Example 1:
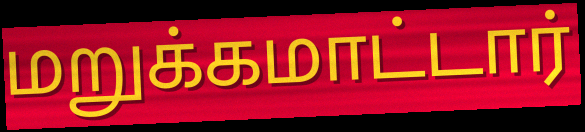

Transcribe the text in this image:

மறுக்கமாட்டார்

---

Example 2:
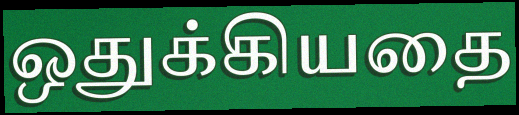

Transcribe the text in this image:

ஒதுக்கியதை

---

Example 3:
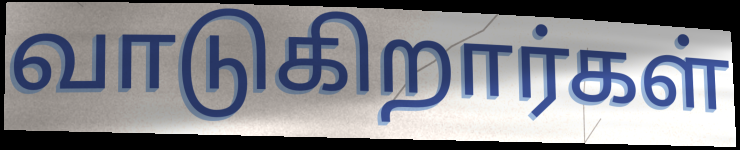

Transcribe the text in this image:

வாடுகிறார்கள்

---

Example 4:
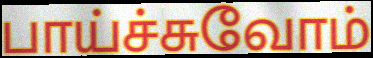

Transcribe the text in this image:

பாய்ச்சுவோம்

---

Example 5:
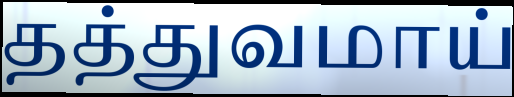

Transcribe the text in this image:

தத்துவமாய்